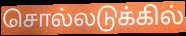
சொல்லடுக்கில்